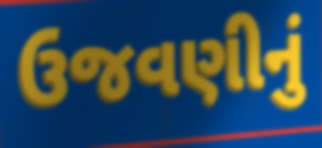
ઉજવણીનું